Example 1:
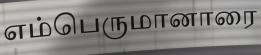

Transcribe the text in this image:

எம்பெருமானாரை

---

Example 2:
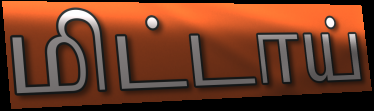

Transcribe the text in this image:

மிட்டாய்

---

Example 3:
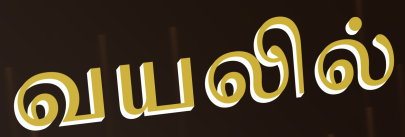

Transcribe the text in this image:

வயலில்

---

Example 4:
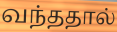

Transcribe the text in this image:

வந்ததால்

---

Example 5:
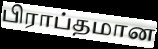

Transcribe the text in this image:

பிராப்தமான